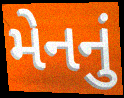
મેનનું